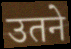
उतने